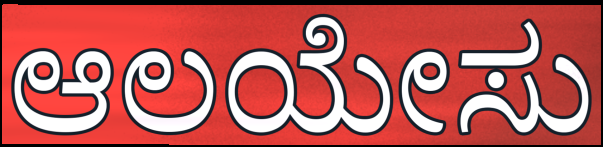
ಆಲಯೇಸು